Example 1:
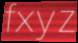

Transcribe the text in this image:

fxyz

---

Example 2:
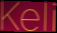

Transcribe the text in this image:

Keli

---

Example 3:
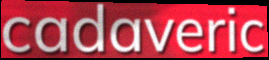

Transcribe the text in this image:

cadaveric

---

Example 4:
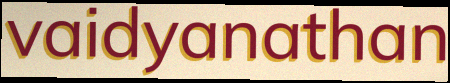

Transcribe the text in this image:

vaidyanathan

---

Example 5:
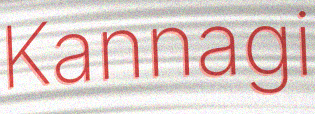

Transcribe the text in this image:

Kannagi